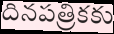
దినపత్రికకు